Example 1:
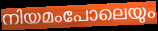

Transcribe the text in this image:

നിയമംപോലെയും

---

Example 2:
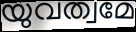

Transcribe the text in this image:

യുവത്വമേ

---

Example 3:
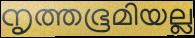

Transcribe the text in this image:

നൃത്തഭൂമിയല്ല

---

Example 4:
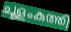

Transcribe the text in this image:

ചൂളംകുത്തി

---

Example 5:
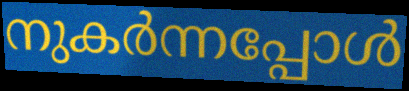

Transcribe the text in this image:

നുകർന്നപ്പോൾ